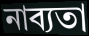
নাব্যতা